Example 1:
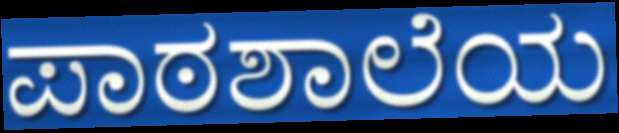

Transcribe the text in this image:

ಪಾಠಶಾಲೆಯ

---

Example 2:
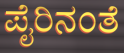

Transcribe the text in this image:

ಪೈರಿನಂತೆ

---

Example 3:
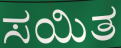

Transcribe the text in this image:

ಸಯಿತ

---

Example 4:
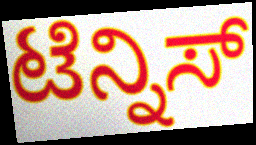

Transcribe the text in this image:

ಟೆನ್ನಿಸ್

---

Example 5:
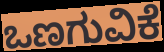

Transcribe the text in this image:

ಒಣಗುವಿಕೆ